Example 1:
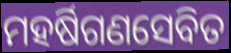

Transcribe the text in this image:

ମହର୍ଷିଗଣସେବିତ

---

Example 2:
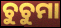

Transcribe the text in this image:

ଚୁଚୁମା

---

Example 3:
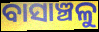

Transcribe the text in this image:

ବାସାଞ୍ଚଳୁ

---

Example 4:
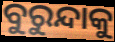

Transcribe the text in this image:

ବୁରୁନ୍ଦାକୁ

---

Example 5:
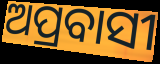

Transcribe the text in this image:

ଅପ୍ରବାସୀ